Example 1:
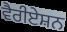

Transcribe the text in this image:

ਵੈਰੀਏਸ਼ਨ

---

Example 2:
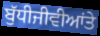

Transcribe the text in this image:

ਬੁੱਧੀਜੀਵੀਆਂਤੇ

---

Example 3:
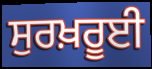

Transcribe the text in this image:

ਸੁਰਖ਼ਰੂਈ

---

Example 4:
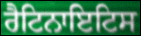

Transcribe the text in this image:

ਰੈਟਿਨਾਇਟਿਸ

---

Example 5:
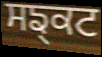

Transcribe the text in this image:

ਸਙ੍ਕਟ